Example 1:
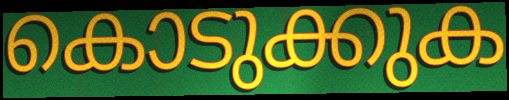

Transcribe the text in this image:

കൊടുക്കുക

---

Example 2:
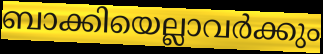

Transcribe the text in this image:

ബാക്കിയെല്ലാവർക്കും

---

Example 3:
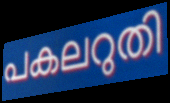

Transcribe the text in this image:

പകലറുതി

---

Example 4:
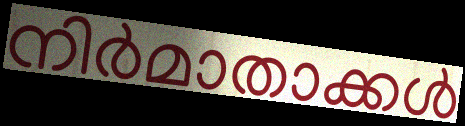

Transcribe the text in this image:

നിർമാതാക്കൾ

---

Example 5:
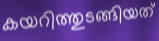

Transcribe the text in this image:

കയറിത്തുടങ്ങിയത്